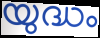
യുദ്ധം